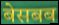
बेसबब